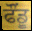
ਫੌਂਡੂ